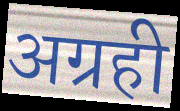
अग्रही